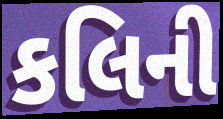
કલિની